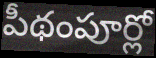
పీథంపూర్లో